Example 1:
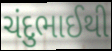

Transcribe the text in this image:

ચંદુભાઈથી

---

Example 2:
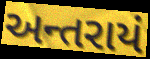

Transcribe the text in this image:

અન્તરાયં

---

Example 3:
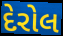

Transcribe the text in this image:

દેરોલ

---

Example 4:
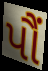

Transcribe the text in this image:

પૌં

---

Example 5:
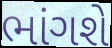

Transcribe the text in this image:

ભાંગશે